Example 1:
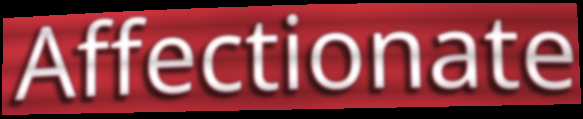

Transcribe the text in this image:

Affectionate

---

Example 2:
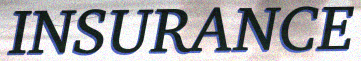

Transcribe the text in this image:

INSURANCE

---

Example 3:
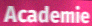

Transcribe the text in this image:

Academie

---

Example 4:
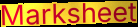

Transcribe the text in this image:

Marksheet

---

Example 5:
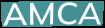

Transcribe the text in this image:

AMCA